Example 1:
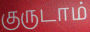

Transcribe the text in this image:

குருடாம்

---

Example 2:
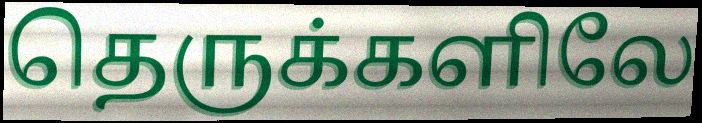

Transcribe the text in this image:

தெருக்களிலே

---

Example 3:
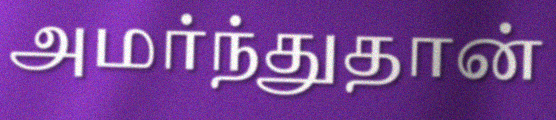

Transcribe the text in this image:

அமர்ந்துதான்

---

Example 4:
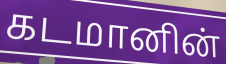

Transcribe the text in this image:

கடமானின்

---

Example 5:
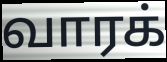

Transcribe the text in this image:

வாரக்